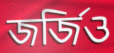
জর্জিও